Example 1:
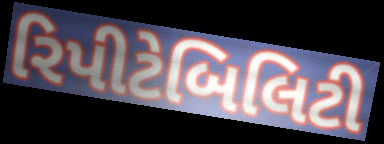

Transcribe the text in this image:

રિપીટેબિલિટી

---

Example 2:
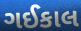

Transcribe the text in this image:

ગઈકાલ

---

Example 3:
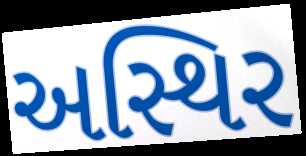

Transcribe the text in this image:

અસ્થિર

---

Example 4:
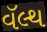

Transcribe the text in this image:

વૅલ્થ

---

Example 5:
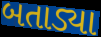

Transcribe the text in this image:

બતાડ્યા